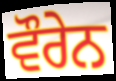
ਵੌਰੇਨ